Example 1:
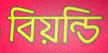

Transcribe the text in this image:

বিয়ন্ডি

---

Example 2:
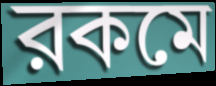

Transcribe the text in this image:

রকমে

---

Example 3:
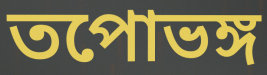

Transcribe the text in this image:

তপোভঙ্গ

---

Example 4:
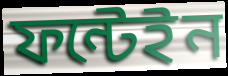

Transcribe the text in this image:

ফন্টেইন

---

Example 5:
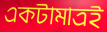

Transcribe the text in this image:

একটামাত্রই